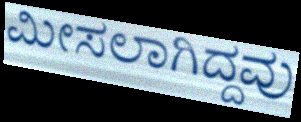
ಮೀಸಲಾಗಿದ್ದವು